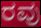
ರವು